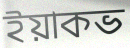
ইয়াকভ